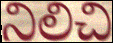
నిలిచి